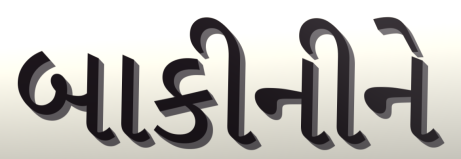
બાકીનીને